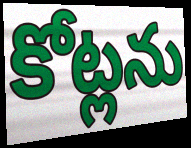
కోట్లను